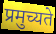
प्रमुच्यते